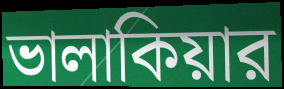
ভালাকিয়ার